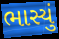
ભાસ્યું